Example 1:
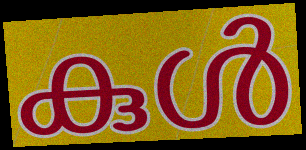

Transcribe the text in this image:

കുൾ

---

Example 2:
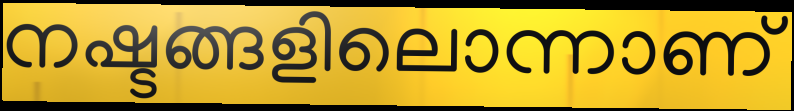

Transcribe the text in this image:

നഷ്ടങ്ങളിലൊന്നാണ്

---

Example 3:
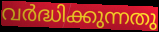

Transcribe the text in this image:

വർദ്ധിക്കുന്നതു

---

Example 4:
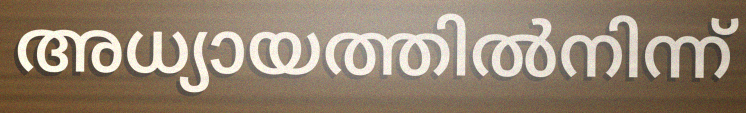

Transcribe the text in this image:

അധ്യായത്തിൽനിന്ന്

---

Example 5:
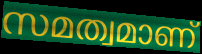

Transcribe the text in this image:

സമത്വമാണ്